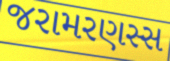
જરામરણસ્સ